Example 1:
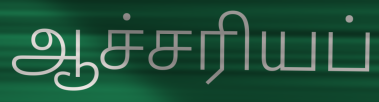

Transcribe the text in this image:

ஆச்சரியப்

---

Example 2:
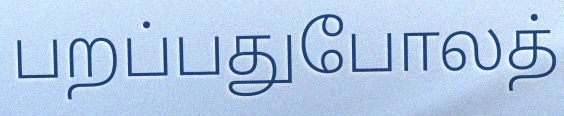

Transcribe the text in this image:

பறப்பதுபோலத்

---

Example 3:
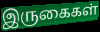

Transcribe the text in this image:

இருகைகள்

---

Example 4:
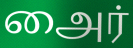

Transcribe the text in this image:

அைர்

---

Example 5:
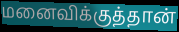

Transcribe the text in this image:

மனைவிக்குத்தான்